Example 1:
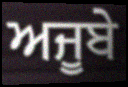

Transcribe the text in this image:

ਅਜੂਬੇ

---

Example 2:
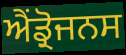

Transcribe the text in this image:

ਐਂਡ੍ਰੋਜਨਸ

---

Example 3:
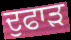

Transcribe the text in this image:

ਦੁਫਾੜ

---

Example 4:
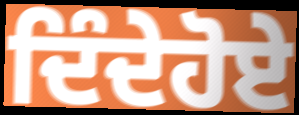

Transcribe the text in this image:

ਦਿੰਦੇਹੋਏ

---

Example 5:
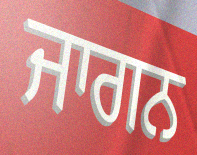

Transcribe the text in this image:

ਜਾਗਨ